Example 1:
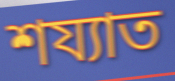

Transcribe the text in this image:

শয্যাত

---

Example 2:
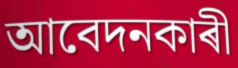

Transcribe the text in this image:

আবেদনকাৰী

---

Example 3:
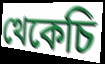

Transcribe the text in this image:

থেকেচি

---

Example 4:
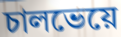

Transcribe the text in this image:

চালভেয়ে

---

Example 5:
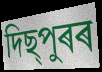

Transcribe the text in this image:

দিছ্পুৰৰ